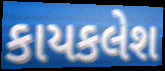
કાયકલેશ